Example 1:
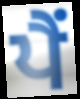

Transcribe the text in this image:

ਪੈਂ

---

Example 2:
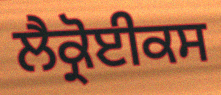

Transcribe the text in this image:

ਲੈਕ੍ਰੋਈਕਸ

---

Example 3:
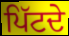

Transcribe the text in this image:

ਪਿੱਟਦੇ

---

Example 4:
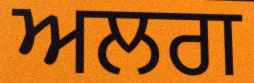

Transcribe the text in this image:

ਅਲਗ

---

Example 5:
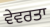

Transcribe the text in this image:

ਵੇਵਰਤਾ